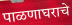
पाळणाघराचे